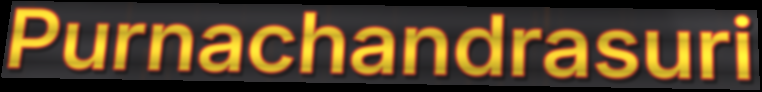
Purnachandrasuri